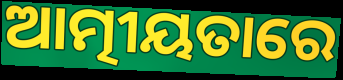
ଆତ୍ମୀୟତାରେ